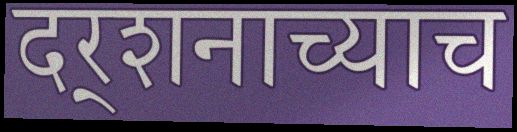
दर्शनाच्याच